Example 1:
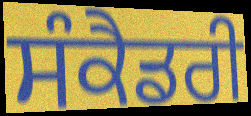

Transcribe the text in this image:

ਸੰਕੈਡਰੀ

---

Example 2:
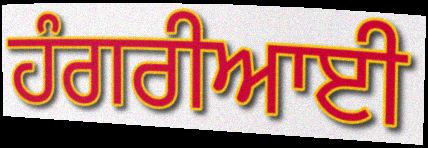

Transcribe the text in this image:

ਹੰਗਰੀਆਈ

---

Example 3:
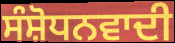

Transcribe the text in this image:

ਸੰਸ਼ੋਧਨਵਾਦੀ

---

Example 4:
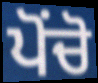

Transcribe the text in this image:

ਪੋਂਚੋ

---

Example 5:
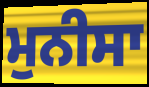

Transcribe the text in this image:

ਮੁਨੀਸਾ